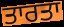
ਤਾਰਤਾ